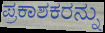
ಪ್ರಕಾಶಕರನ್ನು